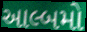
આલ્બમો